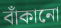
বাঁকানো